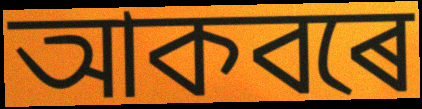
আকবৰে